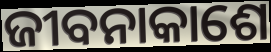
ଜୀବନାକାଶେ